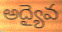
అద్యైవ